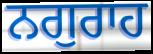
ਨਗੁਰਾਹ